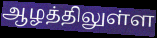
ஆழத்திலுள்ள